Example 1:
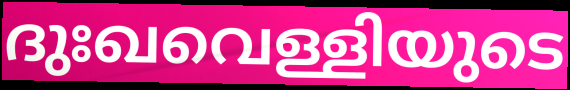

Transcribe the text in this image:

ദുഃഖവെള്ളിയുടെ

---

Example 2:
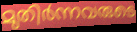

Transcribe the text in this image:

മുതിർന്നവരുടെ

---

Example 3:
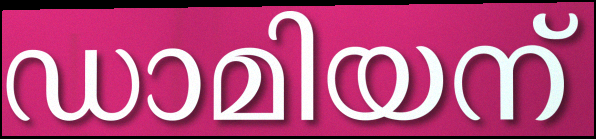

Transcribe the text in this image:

ഡാമിയന്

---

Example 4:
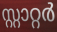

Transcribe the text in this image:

സ്റ്റാറ്റർ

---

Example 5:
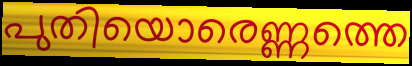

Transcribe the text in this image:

പുതിയൊരെണ്ണത്തെ